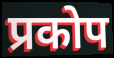
प्रकोप